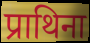
प्राथिना